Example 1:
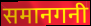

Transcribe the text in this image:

समानगनी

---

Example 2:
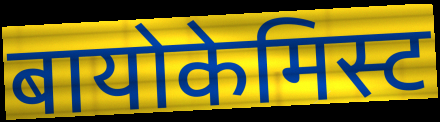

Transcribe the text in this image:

बायोकेमिस्ट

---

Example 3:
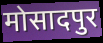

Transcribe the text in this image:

मोसादपुर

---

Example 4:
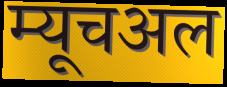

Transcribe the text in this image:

म्यूचअल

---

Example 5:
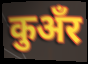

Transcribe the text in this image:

कुअँर